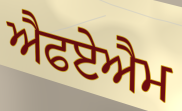
ਐਫਏਐਮ